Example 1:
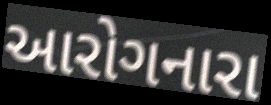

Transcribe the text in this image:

આરોગનારા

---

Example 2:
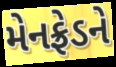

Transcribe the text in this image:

મેનફ્રેડને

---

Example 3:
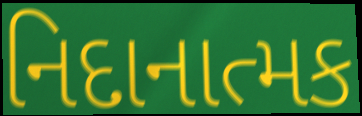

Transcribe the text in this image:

નિદાનાત્મક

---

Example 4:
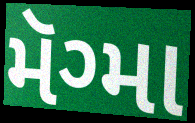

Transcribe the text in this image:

મૅગ્મા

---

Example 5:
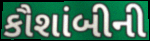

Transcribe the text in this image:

કૌશાંબીની